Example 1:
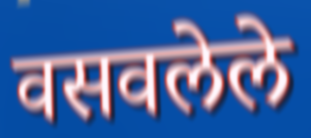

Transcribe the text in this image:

वसवलेले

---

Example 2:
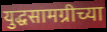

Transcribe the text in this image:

युद्धसामग्रीच्या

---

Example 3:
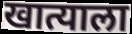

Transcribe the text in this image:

खात्याला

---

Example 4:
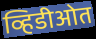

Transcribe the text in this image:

व्हिडीओत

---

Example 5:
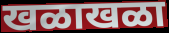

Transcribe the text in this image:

खळाखळा